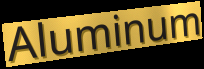
Aluminum